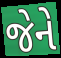
જેને